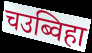
चउब्विहा